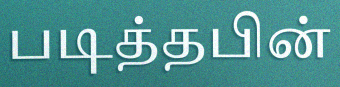
படித்தபின்